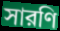
সারণি